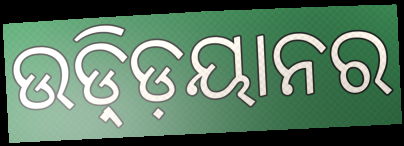
ଉଡ଼୍ଡ଼ିୟାନର